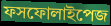
ফসফোলাইপেজ